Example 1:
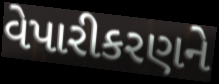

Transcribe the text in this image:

વેપારીકરણને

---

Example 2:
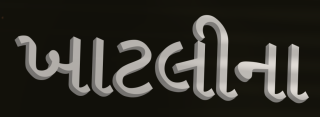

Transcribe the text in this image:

ખાટલીના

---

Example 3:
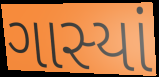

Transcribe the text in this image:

ગાસ્યાં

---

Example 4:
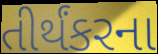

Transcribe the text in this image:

તીર્થંકરના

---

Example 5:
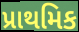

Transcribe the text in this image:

પ્રાથમિક